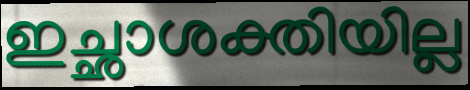
ഇച്ഛാശക്തിയില്ല